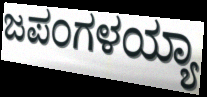
ಜಪಂಗಳಯ್ಯಾ